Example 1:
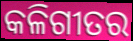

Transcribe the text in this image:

କଳିଗୀତର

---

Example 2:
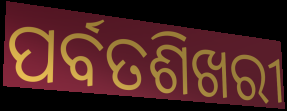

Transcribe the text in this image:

ପର୍ବତଶିଖରୀ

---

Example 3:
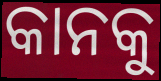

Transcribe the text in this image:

କାନକୁ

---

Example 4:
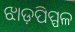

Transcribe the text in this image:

ଝାଡ଼ପିପ୍ପଳ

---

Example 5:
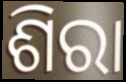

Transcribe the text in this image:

ଶିରା